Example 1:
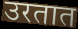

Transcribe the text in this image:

उरतात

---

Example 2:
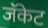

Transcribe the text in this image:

जॅकेट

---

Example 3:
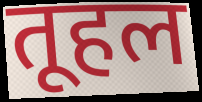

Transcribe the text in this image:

तूहल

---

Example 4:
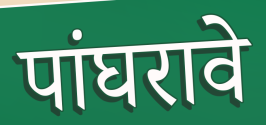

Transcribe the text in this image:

पांघरावे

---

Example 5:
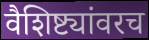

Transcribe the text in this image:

वैशिष्ट्यांवरच